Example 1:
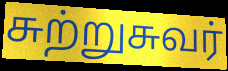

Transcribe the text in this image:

சுற்றுசுவர்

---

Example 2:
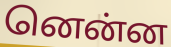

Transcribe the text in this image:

னென்ன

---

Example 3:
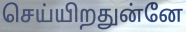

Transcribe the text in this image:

செய்யிறதுன்னே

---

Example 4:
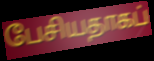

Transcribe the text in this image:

பேசியதாகப்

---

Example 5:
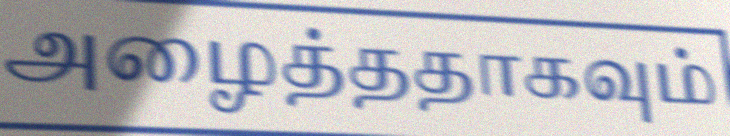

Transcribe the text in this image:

அழைத்ததாகவும்